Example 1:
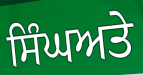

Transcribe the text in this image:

ਸਿੰਘਅਤੇ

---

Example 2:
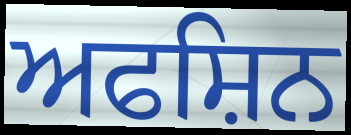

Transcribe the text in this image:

ਅਫਸ਼ਿਨ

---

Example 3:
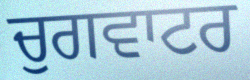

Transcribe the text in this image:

ਚੁਗਵਾਟਰ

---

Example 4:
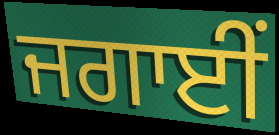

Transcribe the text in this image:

ਜਗਾਈਂ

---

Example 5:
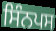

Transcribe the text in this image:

ਸਿੰਨਪਸ